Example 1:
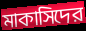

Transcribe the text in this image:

মাকাসিদের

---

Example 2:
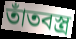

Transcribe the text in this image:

তাঁতবস্ত্র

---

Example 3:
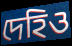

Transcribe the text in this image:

দেহিও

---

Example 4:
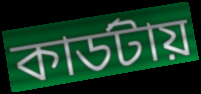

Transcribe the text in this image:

কার্ডটায়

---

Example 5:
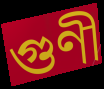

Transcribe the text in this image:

গুণী